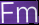
Fm